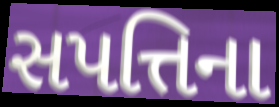
સપત્તિના